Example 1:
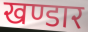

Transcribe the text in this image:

खण्डार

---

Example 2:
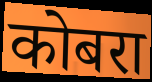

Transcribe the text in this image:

कोबरा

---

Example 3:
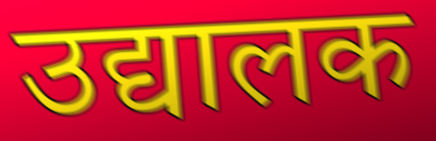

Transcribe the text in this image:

उद्यालक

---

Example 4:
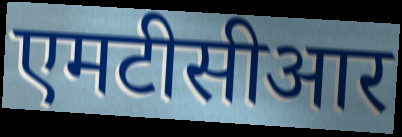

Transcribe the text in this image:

एमटीसीआर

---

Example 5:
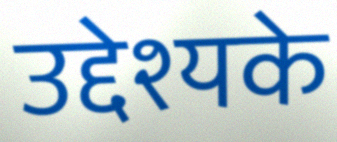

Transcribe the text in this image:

उद्देश्यके